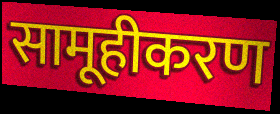
सामूहीकरण